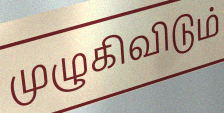
முழுகிவிடும்